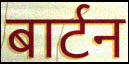
बार्टन